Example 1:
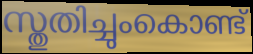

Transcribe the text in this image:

സ്തുതിച്ചുംകൊണ്ട്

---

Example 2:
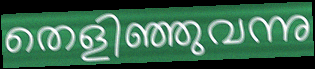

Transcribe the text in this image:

തെളിഞ്ഞുവന്നു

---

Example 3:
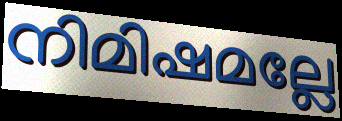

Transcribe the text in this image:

നിമിഷമല്ലേ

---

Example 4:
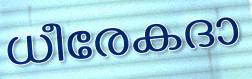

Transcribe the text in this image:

ധീരേകദാ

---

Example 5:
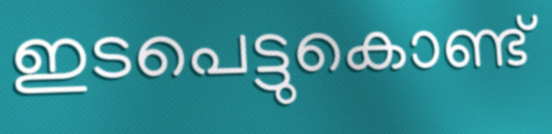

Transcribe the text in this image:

ഇടപെട്ടുകൊണ്ട്